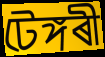
টেঙ্গৰী